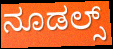
ನೂಡಲ್ಸ್